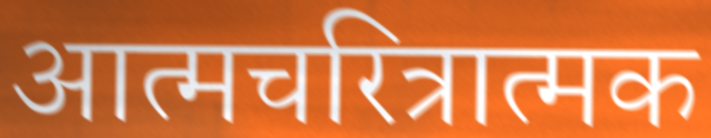
आत्मचरित्रात्मक